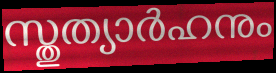
സ്തുത്യാർഹനും